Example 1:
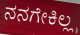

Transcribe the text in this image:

ನನಗೇಕಿಲ್ಲ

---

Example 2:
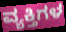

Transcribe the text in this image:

ವ್ಯಕ್ತಿಗಳ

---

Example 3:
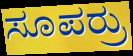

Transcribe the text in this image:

ಸೂಪರ್ರು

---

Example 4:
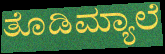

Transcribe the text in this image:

ತೊಡಿಮ್ಯಾಲೆ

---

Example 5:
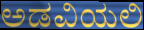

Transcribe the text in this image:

ಅಡವಿಯಲಿ